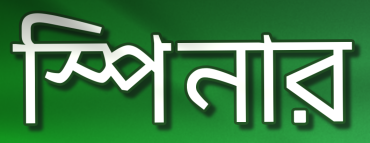
স্পিনার